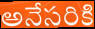
అనేసరికి